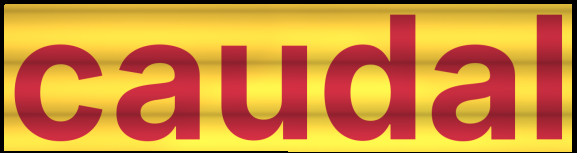
caudal